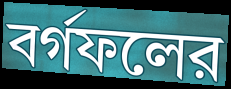
বর্গফলের